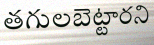
తగులబెట్టారని